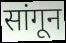
सांगून